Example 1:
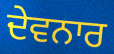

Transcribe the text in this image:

ਦੇਵਨਾਰ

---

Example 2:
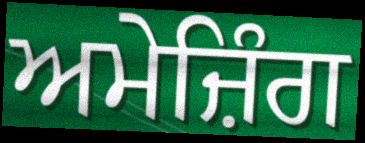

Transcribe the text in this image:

ਅਮੇਜ਼ਿੰਗ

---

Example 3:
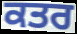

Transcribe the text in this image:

ਕਤਰ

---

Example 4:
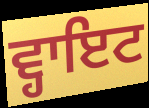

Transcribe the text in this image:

ਵ੍ਹਾਇਟ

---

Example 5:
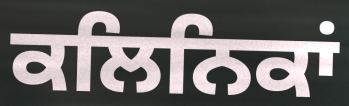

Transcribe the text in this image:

ਕਲਿਨਿਕਾਂ